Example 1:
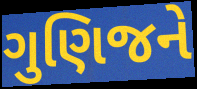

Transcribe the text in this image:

ગુણિજને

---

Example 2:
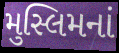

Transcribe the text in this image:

મુસ્લિમનાં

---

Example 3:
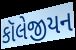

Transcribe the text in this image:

કૉલેજીયન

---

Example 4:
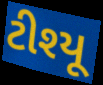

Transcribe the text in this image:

ટીશ્યૂ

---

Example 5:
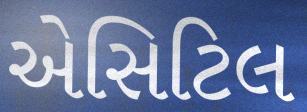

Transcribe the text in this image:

એસિટિલ